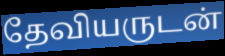
தேவியருடன்